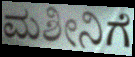
ಮಶೀನಿಗೆ